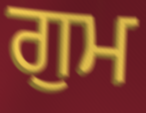
ਗੁਮ